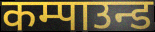
कम्पाउन्ड